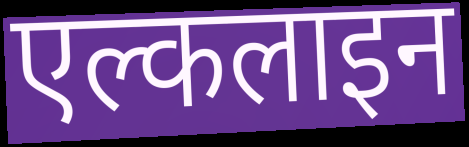
एल्कलाइन